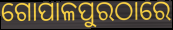
ଗୋପାଳପୁରଠାରେ